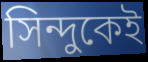
সিন্দুকেই